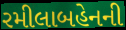
રમીલાબહેનની